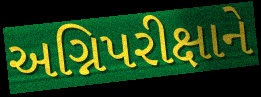
અગ્નિપરીક્ષાને